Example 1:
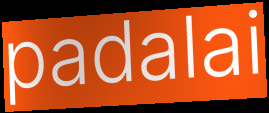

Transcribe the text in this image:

padalai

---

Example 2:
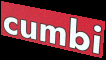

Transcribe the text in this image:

cumbi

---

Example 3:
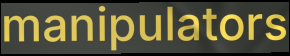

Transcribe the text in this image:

manipulators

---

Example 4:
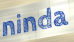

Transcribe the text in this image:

ninda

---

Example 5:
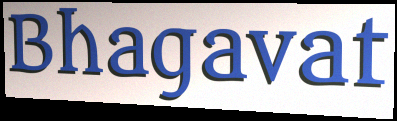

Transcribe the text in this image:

Bhagavat